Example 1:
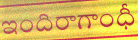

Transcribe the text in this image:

ఇందిరాగాంధీ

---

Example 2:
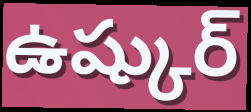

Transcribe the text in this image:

ఉష్కుర్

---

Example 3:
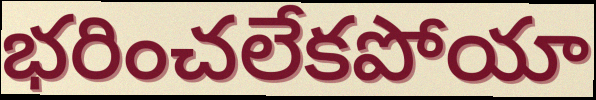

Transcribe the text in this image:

భరించలేకపోయా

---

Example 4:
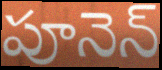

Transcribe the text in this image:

పూనెన్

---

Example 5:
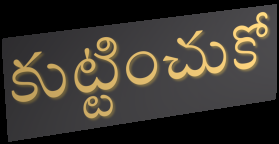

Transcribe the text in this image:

కుట్టించుకో